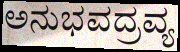
ಅನುಭವದ್ರವ್ಯ